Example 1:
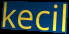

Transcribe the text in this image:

kecil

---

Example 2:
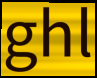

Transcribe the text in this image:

ghl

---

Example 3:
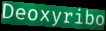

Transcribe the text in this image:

Deoxyribo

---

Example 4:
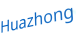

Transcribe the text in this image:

Huazhong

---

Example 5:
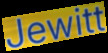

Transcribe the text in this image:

Jewitt